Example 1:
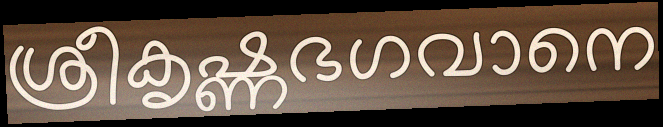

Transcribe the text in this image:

ശ്രീകൃഷ്ണഭഗവാനെ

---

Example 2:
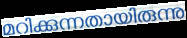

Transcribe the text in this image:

മറിക്കുന്നതായിരുന്നു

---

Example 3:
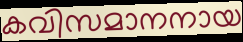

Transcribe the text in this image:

കവിസമാനനായ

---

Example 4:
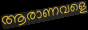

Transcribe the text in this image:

ആരാണവളെ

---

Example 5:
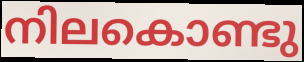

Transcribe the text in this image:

നിലകൊണ്ടു